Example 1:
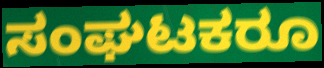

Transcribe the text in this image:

ಸಂಘಟಕರೂ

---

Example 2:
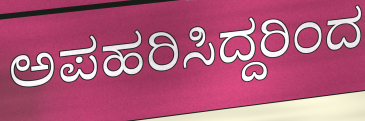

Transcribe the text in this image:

ಅಪಹರಿಸಿದ್ದರಿಂದ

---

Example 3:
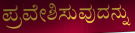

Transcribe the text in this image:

ಪ್ರವೇಶಿಸುವುದನ್ನು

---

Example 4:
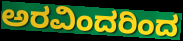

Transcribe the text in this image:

ಅರವಿಂದರಿಂದ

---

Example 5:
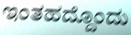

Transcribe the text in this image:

ಇಂತಹದ್ದೊಂದು